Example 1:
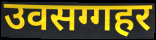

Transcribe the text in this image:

उवसग्गहर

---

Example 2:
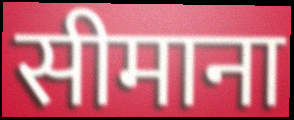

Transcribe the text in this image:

सीमाना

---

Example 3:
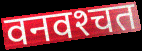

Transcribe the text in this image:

वनवश्चत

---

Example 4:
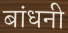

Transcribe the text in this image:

बांधनी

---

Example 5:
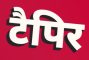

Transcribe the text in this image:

टैपिर